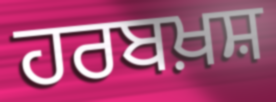
ਹਰਬਖ਼ਸ਼